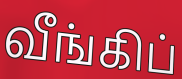
வீங்கிப்